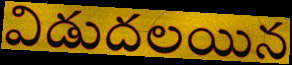
విడుదలయిన